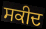
ਸਕੀਦ